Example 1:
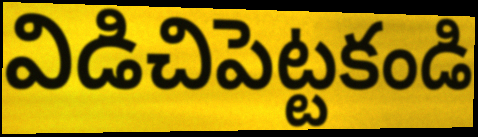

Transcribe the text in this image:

విడిచిపెట్టకండి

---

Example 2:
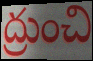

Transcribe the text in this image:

ద్రుంచి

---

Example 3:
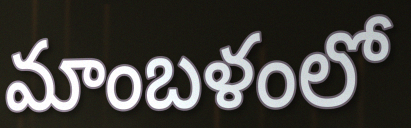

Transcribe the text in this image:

మాంబళంలో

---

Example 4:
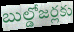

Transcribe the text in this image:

బుల్డోజర్లకు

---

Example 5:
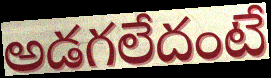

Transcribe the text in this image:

అడగలేదంటే